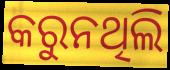
କରୁନଥିଲି